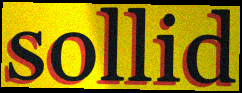
sollid